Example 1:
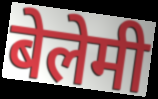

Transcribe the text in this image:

बेलेमी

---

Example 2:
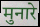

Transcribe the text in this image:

मुनारे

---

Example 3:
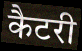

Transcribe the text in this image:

कैटरी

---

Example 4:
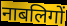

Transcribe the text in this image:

नाबलिगों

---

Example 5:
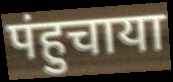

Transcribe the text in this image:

पंहुचाया